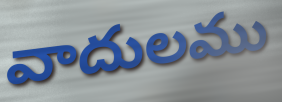
వాదులము